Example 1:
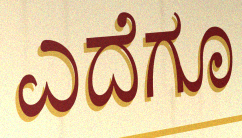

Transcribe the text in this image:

ಎದೆಗೂ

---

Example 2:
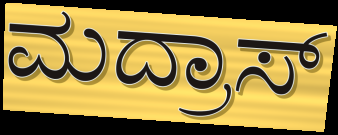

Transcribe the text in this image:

ಮದ್ರಾಸ್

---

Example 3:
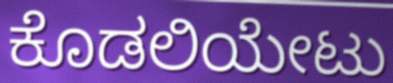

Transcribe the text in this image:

ಕೊಡಲಿಯೇಟು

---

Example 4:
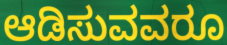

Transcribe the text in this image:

ಆಡಿಸುವವರೂ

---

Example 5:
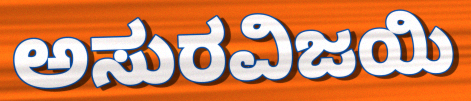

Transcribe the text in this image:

ಅಸುರವಿಜಯಿ